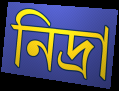
নিদ্রা